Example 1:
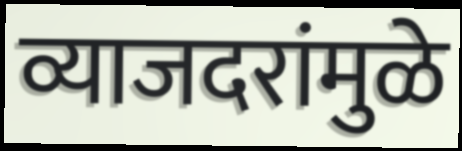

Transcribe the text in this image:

व्याजदरांमुळे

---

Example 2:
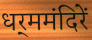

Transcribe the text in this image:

धर्ममंदिरें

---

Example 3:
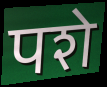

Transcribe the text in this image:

पशे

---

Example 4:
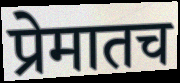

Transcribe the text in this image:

प्रेमातच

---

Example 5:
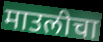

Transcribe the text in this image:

माउलीचा